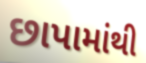
છાપામાંથી